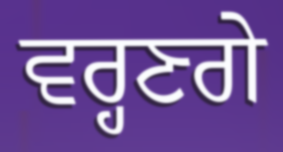
ਵਰ੍ਹਣਗੇ